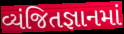
વ્યંજિતજ્ઞાનમાં